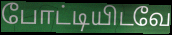
போட்டியிடவே